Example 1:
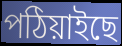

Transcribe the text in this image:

পঠিয়াইছে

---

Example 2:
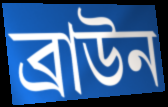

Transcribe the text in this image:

ব্ৰাউন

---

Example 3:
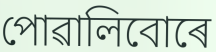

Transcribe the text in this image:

পোৱালিবোৰে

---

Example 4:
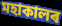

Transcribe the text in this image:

মহাকালৰ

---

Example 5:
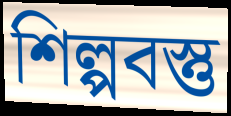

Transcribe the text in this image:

শিল্পবস্তু